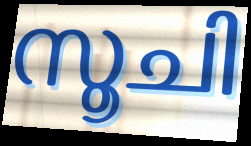
സൂചി